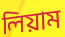
লিয়াম